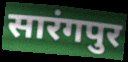
सारंगपुर